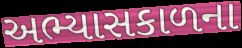
અભ્યાસકાળના